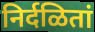
निर्दळितां